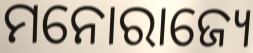
ମନୋରାଜ୍ୟେ